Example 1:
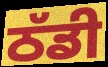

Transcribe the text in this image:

ਠੱਡੀ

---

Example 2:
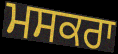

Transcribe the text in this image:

ਮਸਕਰਾ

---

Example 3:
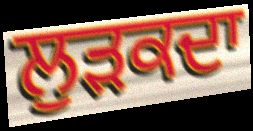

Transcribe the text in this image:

ਲੁੜਕਦਾ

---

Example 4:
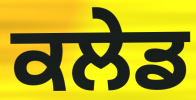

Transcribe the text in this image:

ਕਲੇਡ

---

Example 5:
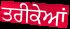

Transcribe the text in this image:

ਤਰੀਕੇਆਂ